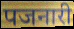
पजनारी